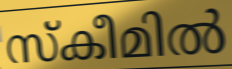
സ്കീമിൽ